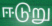
ஈடுறு